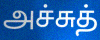
அச்சுத்